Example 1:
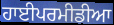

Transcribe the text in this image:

ਹਾਈਪਰਮੀਡੀਆ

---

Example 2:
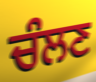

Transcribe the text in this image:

ਚੰਲਣ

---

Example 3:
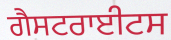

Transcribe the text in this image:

ਗੈਸਟਰਾਈਟਸ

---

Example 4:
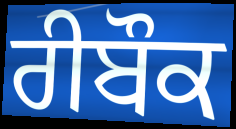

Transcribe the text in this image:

ਰੀਬੌਕ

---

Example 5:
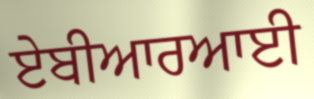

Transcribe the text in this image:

ਏਬੀਆਰਆਈ